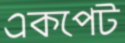
একপেট